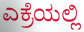
ಎಕ್ರೆಯಲ್ಲಿ